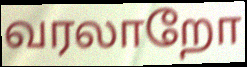
வரலாறோ